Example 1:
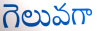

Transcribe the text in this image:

గెలువగా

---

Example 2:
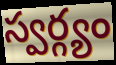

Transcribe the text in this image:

స్వర్గ్యం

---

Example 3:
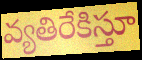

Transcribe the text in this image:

వ్యతిరేకిస్తూ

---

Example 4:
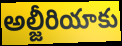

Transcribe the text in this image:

అల్జీరియాకు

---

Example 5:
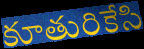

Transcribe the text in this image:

కూతురికేసి